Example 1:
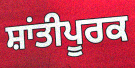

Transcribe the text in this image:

ਸ਼ਾਂਤੀਪੂਰਕ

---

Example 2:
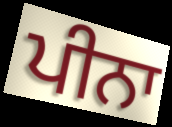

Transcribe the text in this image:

ਪੀਨਾ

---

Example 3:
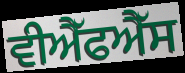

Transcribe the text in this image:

ਵੀਐੱਫਐੱਸ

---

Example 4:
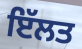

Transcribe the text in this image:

ਇੱਲਤ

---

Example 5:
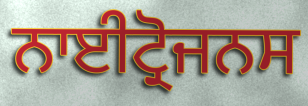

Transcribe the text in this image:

ਨਾਈਟ੍ਰੋਜਨਸ